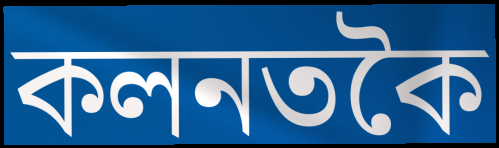
কলনতকৈ